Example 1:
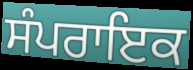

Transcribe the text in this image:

ਸੰਪਰਾਇਕ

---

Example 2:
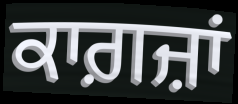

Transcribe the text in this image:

ਕਾਗ਼ਜ਼ਾਂ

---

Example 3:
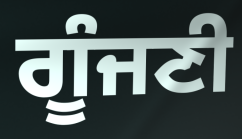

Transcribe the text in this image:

ਗੂੰਜਣੀ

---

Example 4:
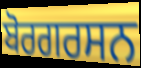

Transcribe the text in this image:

ਬੋਰਗਰਸਨ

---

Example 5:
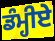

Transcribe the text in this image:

ਡੰਮ੍ਹੀਏ